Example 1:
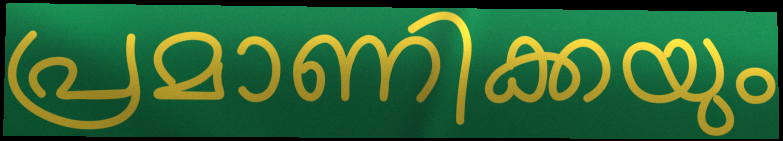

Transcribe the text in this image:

പ്രമാണിക്കയും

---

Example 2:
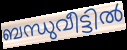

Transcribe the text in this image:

ബന്ധുവീട്ടിൽ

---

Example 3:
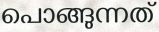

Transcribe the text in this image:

പൊങ്ങുന്നത്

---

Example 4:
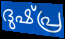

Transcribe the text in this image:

ദുഷ്‌പ്ര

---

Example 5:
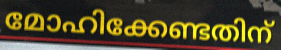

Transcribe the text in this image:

മോഹിക്കേണ്ടതിന്